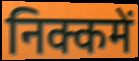
निक्कमें